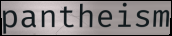
pantheism